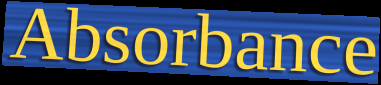
Absorbance